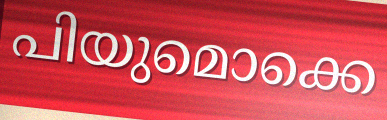
പിയുമൊക്കെ